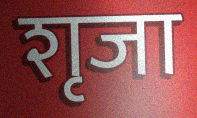
शृजा